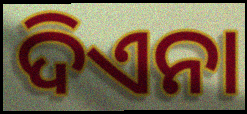
ଦିଏନା